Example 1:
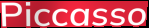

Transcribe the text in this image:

Piccasso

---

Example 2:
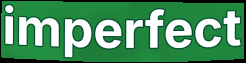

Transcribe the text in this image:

imperfect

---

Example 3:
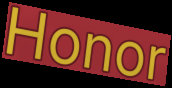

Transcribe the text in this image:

Honor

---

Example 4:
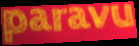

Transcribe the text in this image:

paravu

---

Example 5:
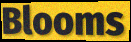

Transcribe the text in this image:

Blooms